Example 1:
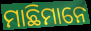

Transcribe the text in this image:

ମାଛିମାନେ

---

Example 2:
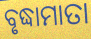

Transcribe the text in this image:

ବୃଦ୍ଧାମାତା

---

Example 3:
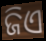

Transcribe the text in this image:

ଜିଏ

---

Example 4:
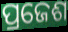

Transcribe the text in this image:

ପ୍ରଜେଶ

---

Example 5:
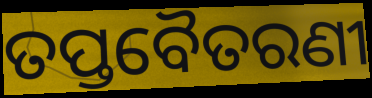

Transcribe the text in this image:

ତପ୍ତବୈତରଣୀ